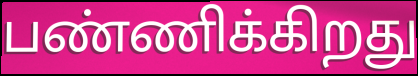
பண்ணிக்கிறது